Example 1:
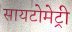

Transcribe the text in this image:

सायटोमेट्री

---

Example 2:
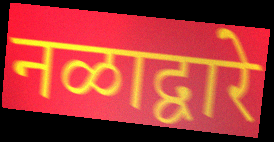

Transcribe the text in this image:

नळाद्वारे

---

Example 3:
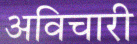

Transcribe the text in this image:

अविचारी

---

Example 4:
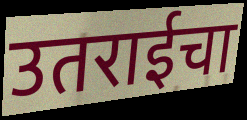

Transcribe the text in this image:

उतराईचा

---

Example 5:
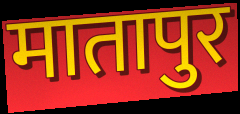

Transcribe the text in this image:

मातापुर